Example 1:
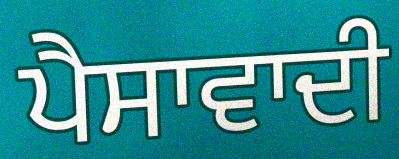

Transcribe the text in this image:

ਪੈਸਾਵਾਦੀ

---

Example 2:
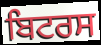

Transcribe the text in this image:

ਬਿਟਰਸ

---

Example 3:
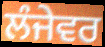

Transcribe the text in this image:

ਲੰਜੇਵਰ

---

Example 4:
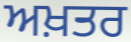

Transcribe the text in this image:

ਅਖ਼ਤਰ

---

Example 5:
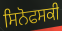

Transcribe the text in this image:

ਸਿਨੋਫਸਕੀ